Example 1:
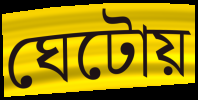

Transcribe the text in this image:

ঘেটোয়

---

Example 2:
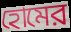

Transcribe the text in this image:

হোমের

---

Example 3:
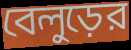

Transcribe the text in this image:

বেলুড়ের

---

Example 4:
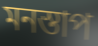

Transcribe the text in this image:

মনস্তাপ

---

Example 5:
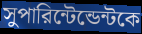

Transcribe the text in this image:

সুপারিন্টেন্ডেন্টকে